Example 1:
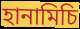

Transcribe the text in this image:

হানামিচি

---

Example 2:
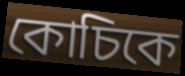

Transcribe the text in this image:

কোচিকে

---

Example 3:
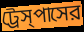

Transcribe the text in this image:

ট্রেস্‌পাসের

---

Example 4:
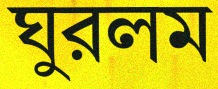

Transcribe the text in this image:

ঘুরলম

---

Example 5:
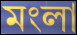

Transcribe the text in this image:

মংলা